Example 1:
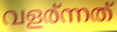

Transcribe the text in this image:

വളര്ന്നത്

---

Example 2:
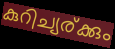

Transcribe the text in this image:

കുറിച്യര്ക്കും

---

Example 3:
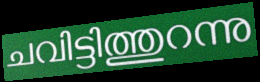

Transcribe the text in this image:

ചവിട്ടിത്തുറന്നു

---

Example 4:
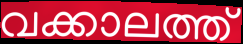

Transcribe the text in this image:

വക്കാലത്ത്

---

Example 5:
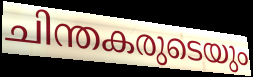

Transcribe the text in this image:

ചിന്തകരുടെയും